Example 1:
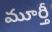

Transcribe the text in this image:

మూర్తీ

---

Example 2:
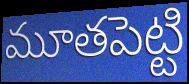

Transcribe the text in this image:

మూతపెట్టి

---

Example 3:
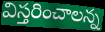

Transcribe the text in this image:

విస్తరించాలన్న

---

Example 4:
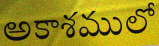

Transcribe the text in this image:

అకాశములో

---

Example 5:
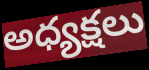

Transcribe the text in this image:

అధ్యక్షలు